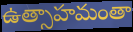
ఉత్సాహమంతా